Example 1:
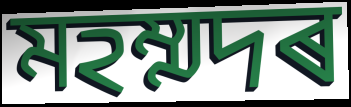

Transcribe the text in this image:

মহম্মদৰ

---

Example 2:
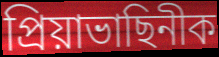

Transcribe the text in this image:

প্ৰিয়াভাছিনীক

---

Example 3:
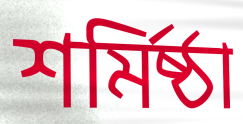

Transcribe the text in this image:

শৰ্মিষ্ঠা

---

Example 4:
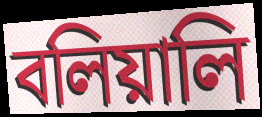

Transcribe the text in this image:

বলিয়ালি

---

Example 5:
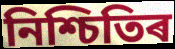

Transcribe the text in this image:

নিশ্চিতিৰ